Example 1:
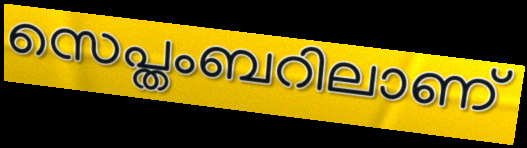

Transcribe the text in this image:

സെപ്തംബറിലാണ്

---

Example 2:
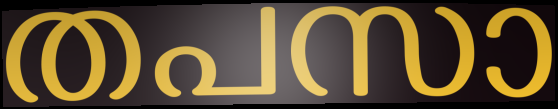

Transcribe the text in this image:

തപസാ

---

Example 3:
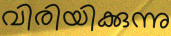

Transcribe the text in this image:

വിരിയിക്കുന്നു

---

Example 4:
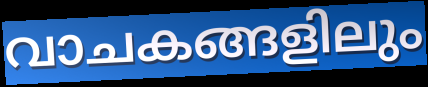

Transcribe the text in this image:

വാചകങ്ങളിലും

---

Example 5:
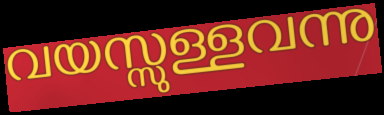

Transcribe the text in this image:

വയസ്സുള്ളവന്നു